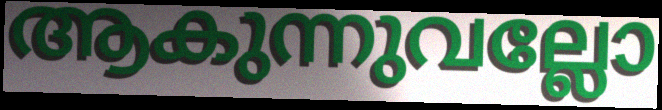
ആകുന്നുവല്ലോ